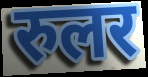
रुलर